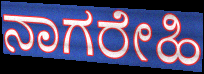
ನಾಗರೇಹಿ